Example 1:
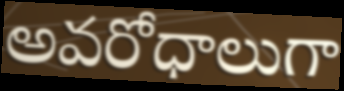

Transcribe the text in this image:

అవరోధాలుగా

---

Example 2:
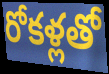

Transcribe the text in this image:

రోకళ్లతో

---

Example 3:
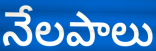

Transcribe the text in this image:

నేలపాలు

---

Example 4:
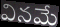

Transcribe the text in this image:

వినమే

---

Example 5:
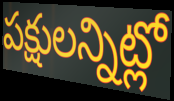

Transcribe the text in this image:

పక్షులన్నిట్లో